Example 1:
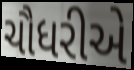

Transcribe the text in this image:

ચૌધરીએ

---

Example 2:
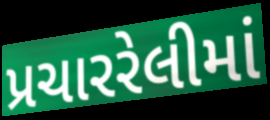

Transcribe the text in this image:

પ્રચારરેલીમાં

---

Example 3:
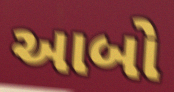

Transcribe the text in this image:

આબો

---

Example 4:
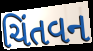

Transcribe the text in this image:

ચિંતવન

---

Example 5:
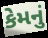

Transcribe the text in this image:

કેમનું